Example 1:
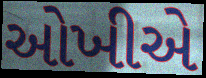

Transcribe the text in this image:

ઓખીએ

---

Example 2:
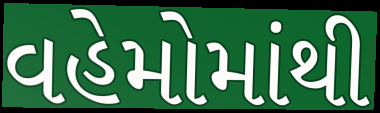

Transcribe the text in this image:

વહેમોમાંથી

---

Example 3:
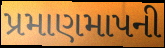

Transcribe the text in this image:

પ્રમાણમાપની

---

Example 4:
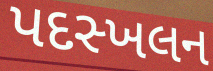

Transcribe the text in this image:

પદસ્ખલન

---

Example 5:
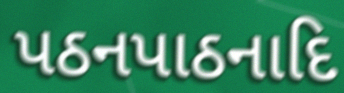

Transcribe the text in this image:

પઠનપાઠનાદિ